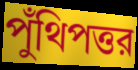
পুঁথিপত্তর